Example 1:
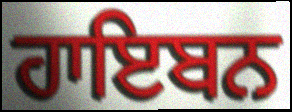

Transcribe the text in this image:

ਹਾਇਬਨ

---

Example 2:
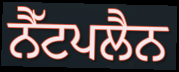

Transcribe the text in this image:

ਨੈੱਟਪਲੈਨ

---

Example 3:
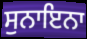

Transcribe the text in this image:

ਸੁਨਾਇਨਾ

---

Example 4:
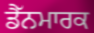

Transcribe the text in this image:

ਡੈੱਨਮਾਰਕ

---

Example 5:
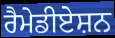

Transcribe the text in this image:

ਰੈਮੇਡੀਏਸ਼ਨ